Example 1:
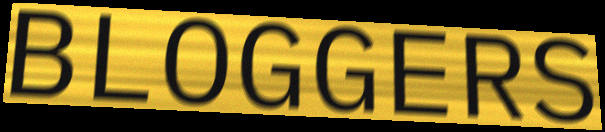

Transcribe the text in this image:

BLOGGERS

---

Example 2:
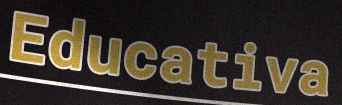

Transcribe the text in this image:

Educativa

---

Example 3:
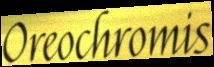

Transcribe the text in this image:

Oreochromis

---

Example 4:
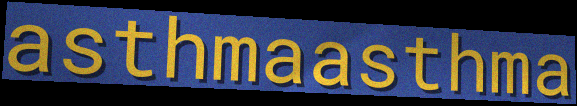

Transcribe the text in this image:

asthmaasthma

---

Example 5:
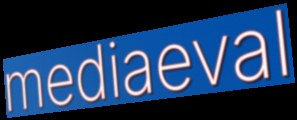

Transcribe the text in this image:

mediaeval